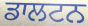
ਡਾਲਟਨ